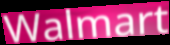
Walmart